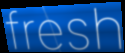
fresh